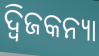
ଦ୍ୱିଜକନ୍ୟା